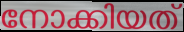
നോക്കിയത്